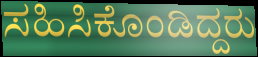
ಸಹಿಸಿಕೊಂಡಿದ್ದರು